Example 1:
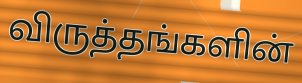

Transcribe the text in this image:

விருத்தங்களின்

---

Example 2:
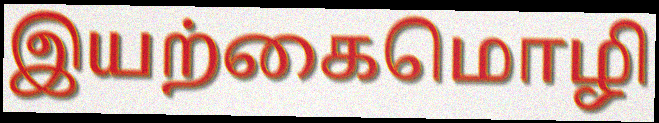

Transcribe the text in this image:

இயற்கைமொழி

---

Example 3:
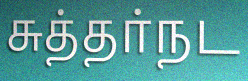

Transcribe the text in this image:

சுத்தர்நட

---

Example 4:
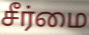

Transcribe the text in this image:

சீர்மை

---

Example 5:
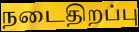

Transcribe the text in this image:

நடைதிறப்பு